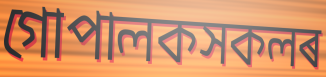
গোপালকসকলৰ